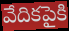
వేదికపైకి